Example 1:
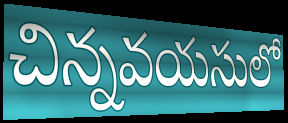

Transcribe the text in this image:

చిన్నవయసులో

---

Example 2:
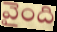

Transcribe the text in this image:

వైంది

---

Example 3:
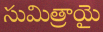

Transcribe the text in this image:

సుమిత్రాయై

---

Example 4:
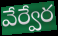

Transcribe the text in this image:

వేర్వేర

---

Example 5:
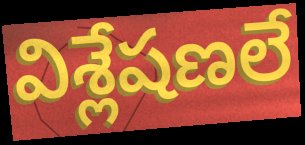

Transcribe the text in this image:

విశ్లేషణలే